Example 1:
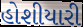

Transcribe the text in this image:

હોશીયારી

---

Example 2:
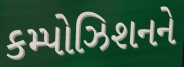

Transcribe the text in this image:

કમ્પોઝિશનને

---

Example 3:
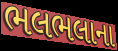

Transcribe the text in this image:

ભલભલાના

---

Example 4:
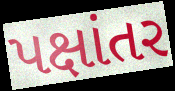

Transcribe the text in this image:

પક્ષાંતર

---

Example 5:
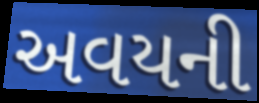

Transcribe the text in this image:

અવયની